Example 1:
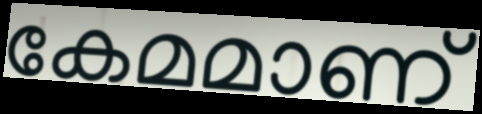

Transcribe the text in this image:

കേമമാണ്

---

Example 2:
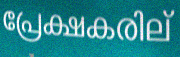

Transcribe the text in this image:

പ്രേക്ഷകരില്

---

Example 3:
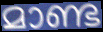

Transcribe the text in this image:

മാണ്ട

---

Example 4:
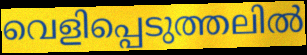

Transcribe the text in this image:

വെളിപ്പെടുത്തലിൽ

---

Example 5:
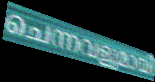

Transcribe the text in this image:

ചെന്നവളുമായി